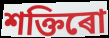
শক্তিৰো